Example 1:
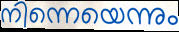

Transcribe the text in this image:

നിന്നെയെന്നും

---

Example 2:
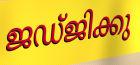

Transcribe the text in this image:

ജഡ്ജിക്കു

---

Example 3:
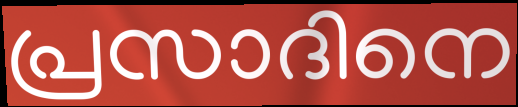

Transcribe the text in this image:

പ്രസാദിനെ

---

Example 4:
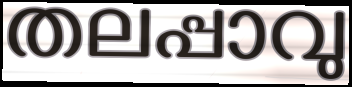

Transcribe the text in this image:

തലപ്പാവു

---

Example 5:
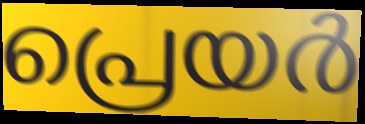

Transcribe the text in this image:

പ്രെയർ